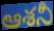
ఆశనీ